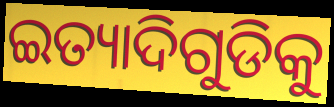
ଇତ୍ୟାଦିଗୁଡିକୁ